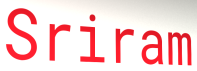
Sriram